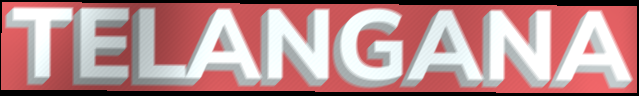
TELANGANA